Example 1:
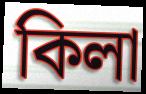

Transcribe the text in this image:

কিলা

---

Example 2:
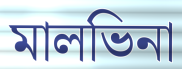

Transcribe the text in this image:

মালভিনা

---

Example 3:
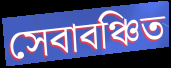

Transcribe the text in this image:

সেবাবঞ্চিত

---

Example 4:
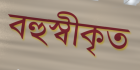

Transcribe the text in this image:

বহুস্বীকৃত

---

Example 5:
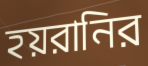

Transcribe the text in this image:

হয়রানির